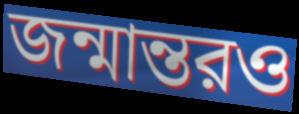
জন্মান্তরও